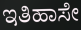
ಇತಿಹಾಸೇ